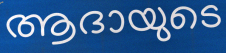
ആദായുടെ